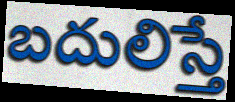
బదులిస్తే